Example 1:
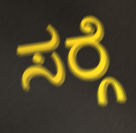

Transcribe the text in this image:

ಸರ್‍ಗೆ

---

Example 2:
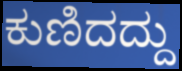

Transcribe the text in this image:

ಕುಣಿದದ್ದು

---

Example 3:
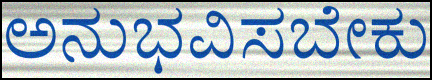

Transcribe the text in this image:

ಅನುಭವಿಸಬೇಕು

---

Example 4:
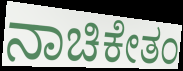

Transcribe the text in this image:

ನಾಚಿಕೇತಂ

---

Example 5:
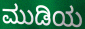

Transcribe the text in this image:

ಮುಡಿಯ